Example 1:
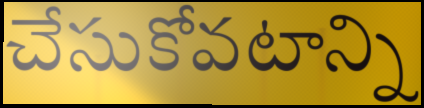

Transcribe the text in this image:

చేసుకోవటాన్ని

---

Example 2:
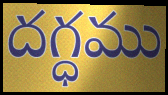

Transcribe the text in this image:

దగ్ధము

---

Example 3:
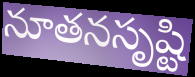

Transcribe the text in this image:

నూతనసృష్టి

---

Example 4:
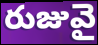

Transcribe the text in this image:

రుజువై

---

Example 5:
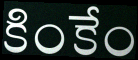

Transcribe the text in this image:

కింకేం